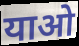
याओ